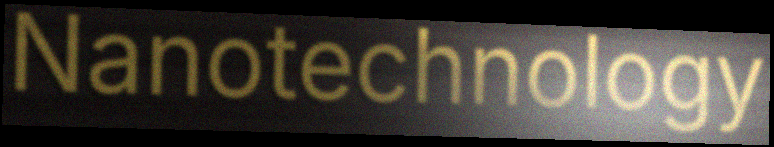
Nanotechnology